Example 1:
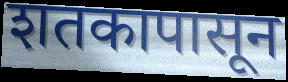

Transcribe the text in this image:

शतकापासून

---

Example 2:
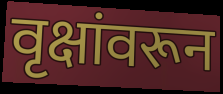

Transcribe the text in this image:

वृक्षांवरून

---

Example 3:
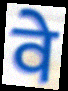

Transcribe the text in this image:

वे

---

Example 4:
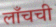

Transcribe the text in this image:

लाँचची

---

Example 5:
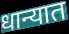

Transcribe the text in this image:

धान्यात